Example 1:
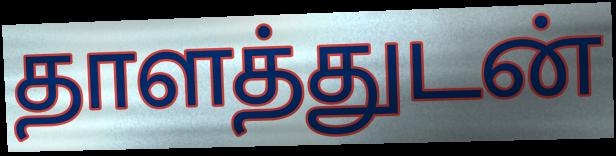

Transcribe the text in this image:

தாளத்துடன்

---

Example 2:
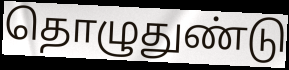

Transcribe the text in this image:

தொழுதுண்டு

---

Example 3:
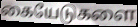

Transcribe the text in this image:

கையேடுகளை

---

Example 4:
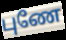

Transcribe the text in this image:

புணே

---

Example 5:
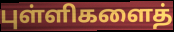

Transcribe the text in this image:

புள்ளிகளைத்